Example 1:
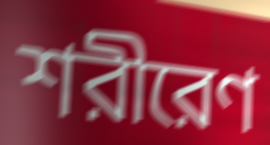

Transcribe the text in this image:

শরীরেণ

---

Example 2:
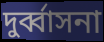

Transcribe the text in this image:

দুর্ব্বাসনা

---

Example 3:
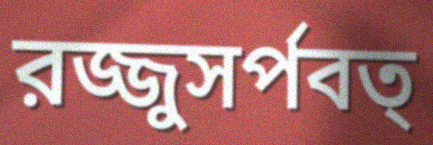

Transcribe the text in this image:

রজ্জুসর্পবত্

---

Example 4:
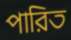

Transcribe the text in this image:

পারিত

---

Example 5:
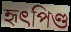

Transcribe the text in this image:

হৃৎপিণ্ড